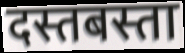
दस्तबस्ता